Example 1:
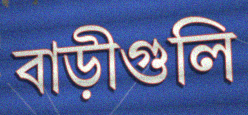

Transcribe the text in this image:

বাড়ীগুলি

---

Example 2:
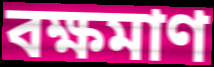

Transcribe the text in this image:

বক্ষমাণ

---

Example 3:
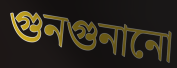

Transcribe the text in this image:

গুনগুনানো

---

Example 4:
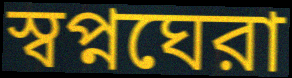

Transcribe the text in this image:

স্বপ্নঘেরা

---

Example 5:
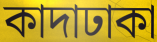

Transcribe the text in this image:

কাদাঢাকা